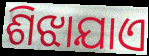
ଶିଝାଯାଏ